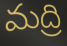
మద్రి